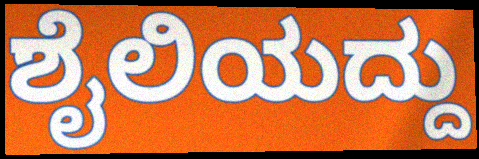
ಶೈಲಿಯದ್ದು